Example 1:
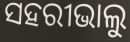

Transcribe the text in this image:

ସହରୀଭାଲୁ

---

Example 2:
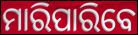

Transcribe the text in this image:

ମାରିପାରିବେ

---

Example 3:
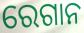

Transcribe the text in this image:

ରେଗାନ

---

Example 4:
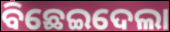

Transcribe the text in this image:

ବିଛେଇଦେଲା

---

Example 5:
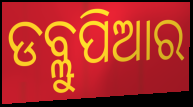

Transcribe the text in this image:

ଡବ୍ଲୁପିଆର